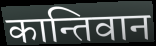
कान्तिवान